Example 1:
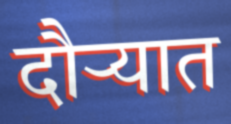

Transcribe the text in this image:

दौर्‍यात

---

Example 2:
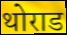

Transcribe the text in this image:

थोराड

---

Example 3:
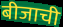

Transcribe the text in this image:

बीजाची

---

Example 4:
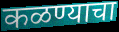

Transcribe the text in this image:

कळण्याचा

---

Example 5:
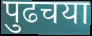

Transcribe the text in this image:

पुढचया